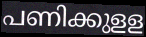
പണിക്കുളള